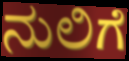
ನುಲಿಗೆ